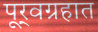
पूर्वग्रहात